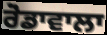
ਰੋਡਾਵਾਲਾ